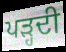
ਪੜ੍ਹਦੀ